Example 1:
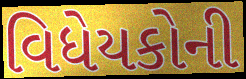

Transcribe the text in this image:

વિધેયકોની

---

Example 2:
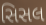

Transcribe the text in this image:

સિસલ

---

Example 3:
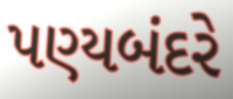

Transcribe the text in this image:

પણ્યબંદરે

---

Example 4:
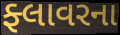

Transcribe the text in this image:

ફ્લાવરના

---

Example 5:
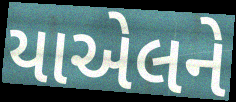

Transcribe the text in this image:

યાએલને